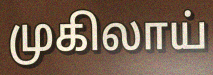
முகிலாய்